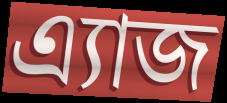
এ্যাজ